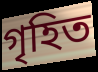
গৃহিত